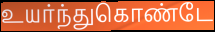
உயர்ந்துகொண்டே